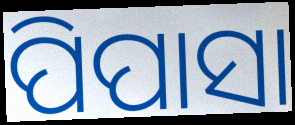
ପିପାସା